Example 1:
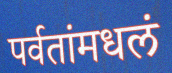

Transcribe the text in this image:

पर्वतांमधलं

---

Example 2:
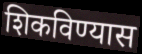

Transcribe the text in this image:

शिकविण्यास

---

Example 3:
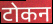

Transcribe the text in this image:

टोकन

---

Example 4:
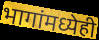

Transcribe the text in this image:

भागांमध्येही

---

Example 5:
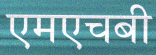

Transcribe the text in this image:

एमएचबी